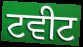
ਟਵੀਟ